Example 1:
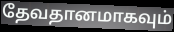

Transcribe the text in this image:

தேவதானமாகவும்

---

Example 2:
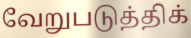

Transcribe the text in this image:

வேறுபடுத்திக்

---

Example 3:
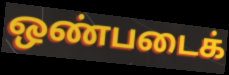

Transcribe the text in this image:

ஒண்படைக்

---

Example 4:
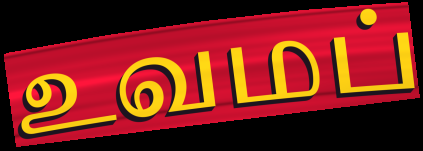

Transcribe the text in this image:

உவமப்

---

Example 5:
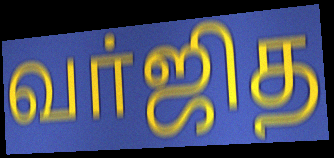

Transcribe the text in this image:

வர்ஜித